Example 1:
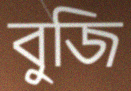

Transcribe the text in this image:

বুজি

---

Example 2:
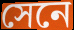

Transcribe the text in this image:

সেনে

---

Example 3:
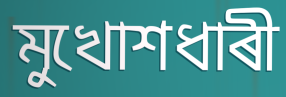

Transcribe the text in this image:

মুখোশধাৰী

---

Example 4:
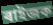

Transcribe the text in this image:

ৰাইজক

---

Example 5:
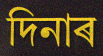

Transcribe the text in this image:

দিনাৰ